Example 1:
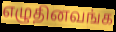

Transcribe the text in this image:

எழுதினவங்க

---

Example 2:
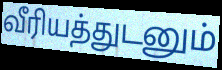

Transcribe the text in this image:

வீரியத்துடனும்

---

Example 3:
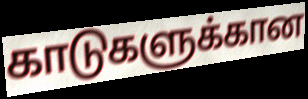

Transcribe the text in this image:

காடுகளுக்கான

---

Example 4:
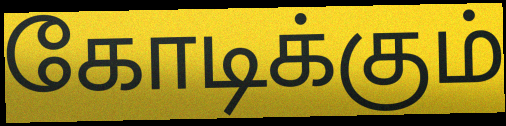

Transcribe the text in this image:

கோடிக்கும்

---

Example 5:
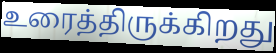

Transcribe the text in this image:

உரைத்திருக்கிறது